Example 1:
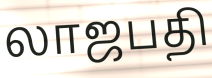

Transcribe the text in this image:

லாஜபதி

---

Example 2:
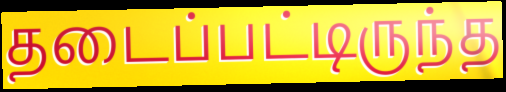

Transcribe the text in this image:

தடைப்பட்டிருந்த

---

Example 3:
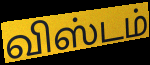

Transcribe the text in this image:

விஸ்டம்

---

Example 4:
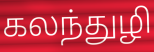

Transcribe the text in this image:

கலந்துழி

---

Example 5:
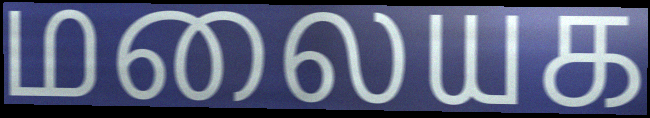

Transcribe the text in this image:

மலையக